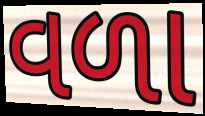
વળા